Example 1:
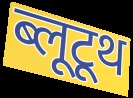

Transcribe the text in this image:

ब्लूटूथ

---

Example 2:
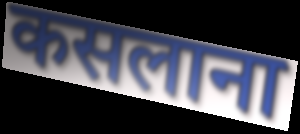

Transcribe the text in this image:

कसलाना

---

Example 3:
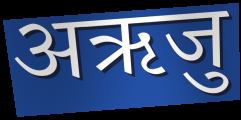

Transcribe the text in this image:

अऋजु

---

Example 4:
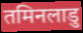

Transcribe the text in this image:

तमिनलाडु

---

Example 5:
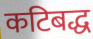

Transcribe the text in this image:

कटिबद्ध